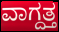
ವಾಗ್ದತ್ತ